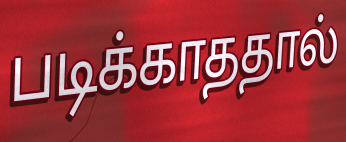
படிக்காததால்